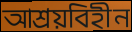
আশ্রয়বিহীন